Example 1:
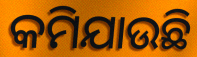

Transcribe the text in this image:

କମିଯାଉଛି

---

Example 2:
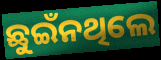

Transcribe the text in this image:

ଛୁଇଁନଥିଲେ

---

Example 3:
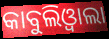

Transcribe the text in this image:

କାବୁଲିଓ୍ୱାଲା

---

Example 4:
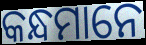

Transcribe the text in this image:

କନ୍ଧମାନେ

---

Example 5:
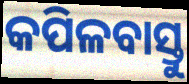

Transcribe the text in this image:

କପିଳବାସ୍ତୁ